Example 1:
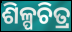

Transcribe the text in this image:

ଶିଳ୍ପଚିତ୍ର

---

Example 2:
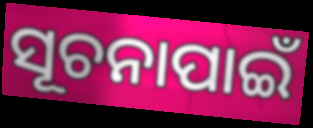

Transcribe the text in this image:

ସୂଚନାପାଇଁ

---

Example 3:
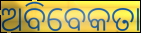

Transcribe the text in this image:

ଅବିବେକତା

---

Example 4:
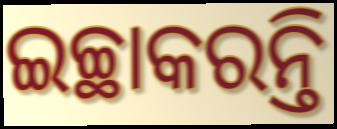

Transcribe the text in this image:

ଇଚ୍ଛାକରନ୍ତି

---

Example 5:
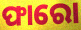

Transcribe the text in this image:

ଫାରୋ